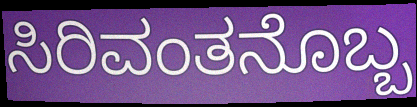
ಸಿರಿವಂತನೊಬ್ಬ